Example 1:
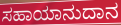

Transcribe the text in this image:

ಸಹಾಯಾನುದಾನ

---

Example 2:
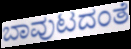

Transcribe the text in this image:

ಬಾವುಟದಂತೆ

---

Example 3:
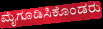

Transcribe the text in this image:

ಮೈಗೂಡಿಸಿಕೊಂಡರು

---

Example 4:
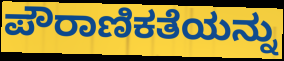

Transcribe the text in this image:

ಪೌರಾಣಿಕತೆಯನ್ನು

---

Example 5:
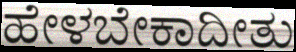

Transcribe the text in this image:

ಹೇಳಬೇಕಾದೀತು